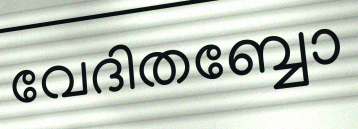
വേദിതബ്ബോ